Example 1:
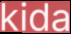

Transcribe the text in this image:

kida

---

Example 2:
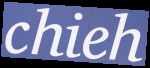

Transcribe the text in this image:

chieh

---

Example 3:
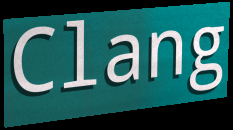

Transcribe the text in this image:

Clang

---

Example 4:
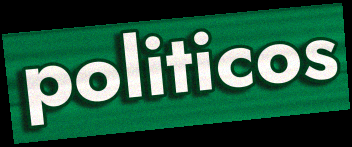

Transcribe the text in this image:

politicos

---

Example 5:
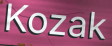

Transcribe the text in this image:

Kozak